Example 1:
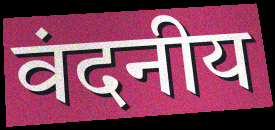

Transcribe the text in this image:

वंदनीय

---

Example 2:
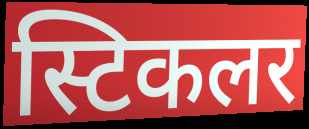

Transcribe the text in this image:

स्टिकलर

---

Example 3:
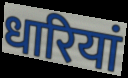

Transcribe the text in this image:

धारियां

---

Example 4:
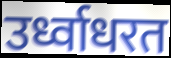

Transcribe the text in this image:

उर्ध्वाधरत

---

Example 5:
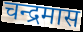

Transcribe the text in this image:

चन्द्रमास